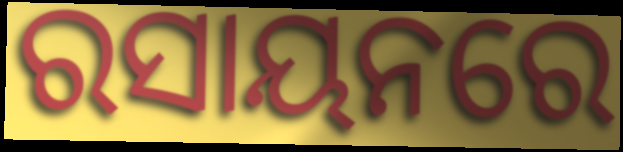
ରସାୟନରେ